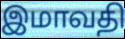
இமாவதி